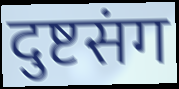
दुष्टसंग